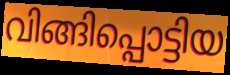
വിങ്ങിപ്പൊട്ടിയ